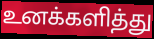
உனக்களித்து